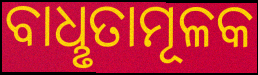
ବାଧୢତାମୂଳକ